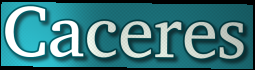
Caceres